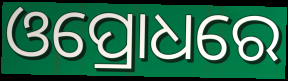
ଓପ୍ରୋଧରେ